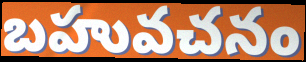
బహువచనం